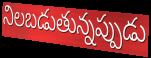
నిలబడుతున్నప్పుడు